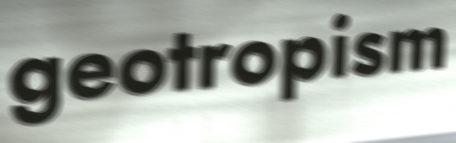
geotropism